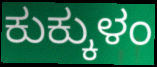
ಕುಕ್ಕುಳಂ